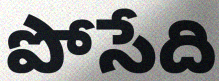
పోసేది